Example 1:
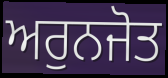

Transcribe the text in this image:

ਅਰੁਨਜੋਤ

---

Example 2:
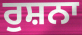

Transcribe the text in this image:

ਰੁਸ਼ਨਾ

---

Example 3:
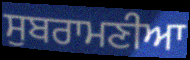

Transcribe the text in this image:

ਸੁਬਰਾਮਣੀਆ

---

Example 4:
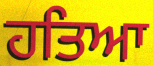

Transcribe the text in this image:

ਹਤਿਆ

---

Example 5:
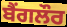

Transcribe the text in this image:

ਬੈਂਗਲੌਰ